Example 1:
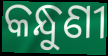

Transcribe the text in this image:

କନ୍ଧୁଣୀ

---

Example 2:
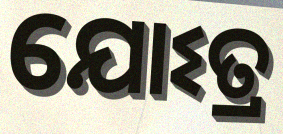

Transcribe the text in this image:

ଯୋଽତ୍ର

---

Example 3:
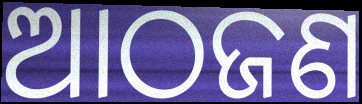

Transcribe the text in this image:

ଆଠଜଣ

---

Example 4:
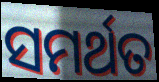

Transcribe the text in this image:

ସମର୍ଥତ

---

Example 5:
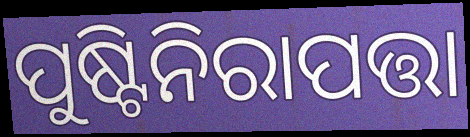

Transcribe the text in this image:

ପୁଷ୍ଟିନିରାପତ୍ତା